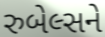
રુબેલ્સને